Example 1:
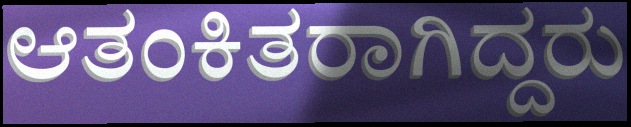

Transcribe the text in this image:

ಆತಂಕಿತರಾಗಿದ್ದರು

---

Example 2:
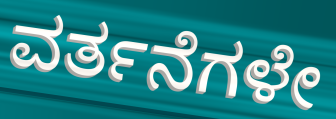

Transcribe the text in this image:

ವರ್ತನೆಗಳೇ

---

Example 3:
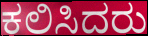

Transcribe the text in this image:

ಕಲಿಸಿದರು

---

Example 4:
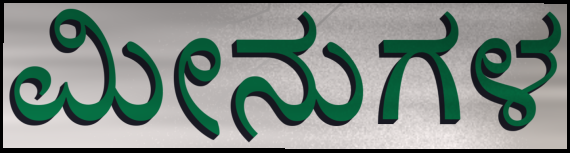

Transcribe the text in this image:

ಮೀನುಗಳ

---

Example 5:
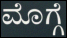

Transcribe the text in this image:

ಮೊಗ್ಗೆ